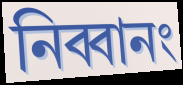
নিব্বানং